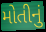
મોતીનું